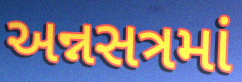
અન્નસત્રમાં